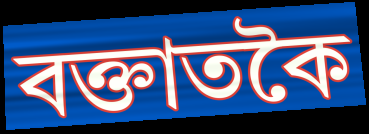
বক্তাতকৈ